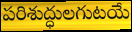
పరిశుద్ధులగుటయే